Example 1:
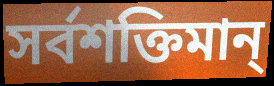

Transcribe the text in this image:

সর্বশক্তিমান্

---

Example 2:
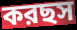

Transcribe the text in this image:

করছস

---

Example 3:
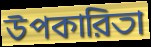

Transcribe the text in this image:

উপকারিতা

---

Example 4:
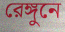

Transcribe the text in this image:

রেঙ্গুনে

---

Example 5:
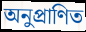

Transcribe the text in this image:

অনুপ্রাণিত